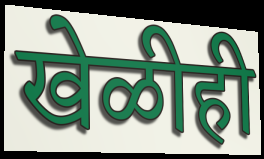
खेळीही